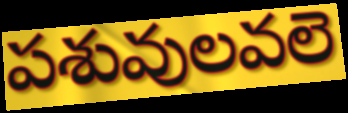
పశువులవలె